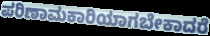
ಪರಿಣಾಮಕಾರಿಯಾಗಬೇಕಾದರೆ